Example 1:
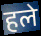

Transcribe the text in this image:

हले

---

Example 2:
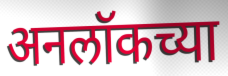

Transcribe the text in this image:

अनलॉकच्या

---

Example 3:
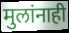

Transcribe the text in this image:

मुलांनाही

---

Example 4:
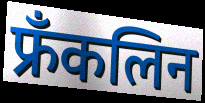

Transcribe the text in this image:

फ्रँकलिन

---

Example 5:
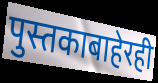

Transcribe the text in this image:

पुस्तकाबाहेरही